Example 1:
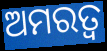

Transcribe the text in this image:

ଅମରତ୍ବ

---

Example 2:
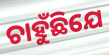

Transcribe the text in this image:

ଚାହୁଁଛିଯେ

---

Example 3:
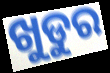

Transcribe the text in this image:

ଖୁଡୁର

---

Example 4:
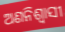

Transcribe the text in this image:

ଅଣନିଶ୍ୱାସୀ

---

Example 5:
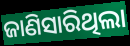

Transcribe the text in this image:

ଜାଣିସାରିଥିଲା